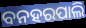
ବନହରପାଲି